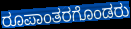
ರೂಪಾಂತರಗೊಂಡರು